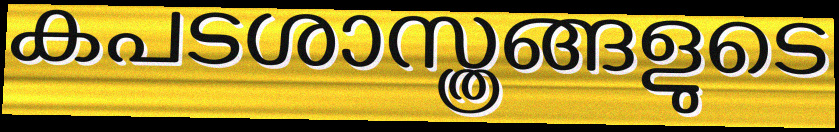
കപടശാസ്ത്രങ്ങളുടെ